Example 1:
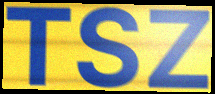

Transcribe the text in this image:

TSZ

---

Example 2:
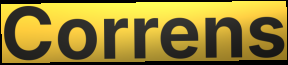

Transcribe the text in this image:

Correns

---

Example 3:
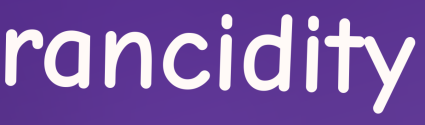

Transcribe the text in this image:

rancidity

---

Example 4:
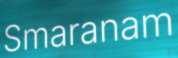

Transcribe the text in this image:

Smaranam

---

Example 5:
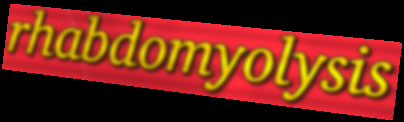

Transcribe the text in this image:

rhabdomyolysis